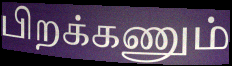
பிறக்கணும்